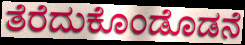
ತೆರೆದುಕೊಂಡೊಡನೆ